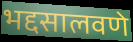
भद्दसालवणे